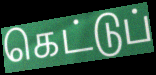
கெட்டுப்